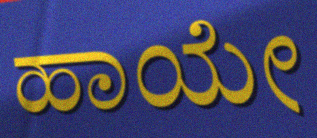
ಹಾಯೇ